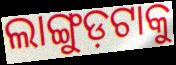
ଲାଙ୍ଗୁଡ଼ଟାକୁ